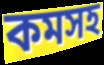
কমসহ